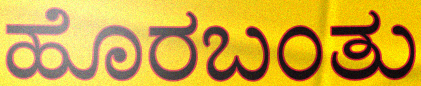
ಹೊರಬಂತು